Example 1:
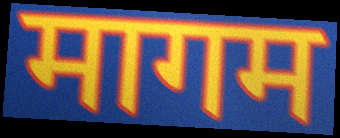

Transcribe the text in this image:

मागम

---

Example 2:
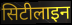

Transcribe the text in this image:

सिटीलाइन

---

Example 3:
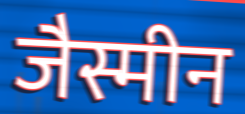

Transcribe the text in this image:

जैस्‍मीन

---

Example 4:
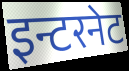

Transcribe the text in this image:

इन्‍टरनेट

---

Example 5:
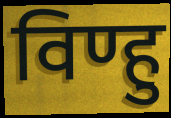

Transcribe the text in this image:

विण्हु